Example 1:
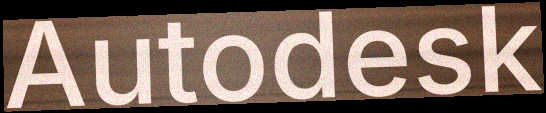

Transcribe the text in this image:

Autodesk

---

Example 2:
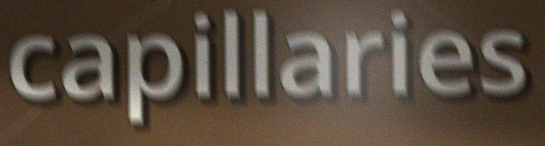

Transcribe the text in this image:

capillaries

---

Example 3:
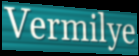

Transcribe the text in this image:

Vermilye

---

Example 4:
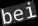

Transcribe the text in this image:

bei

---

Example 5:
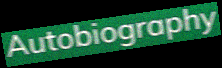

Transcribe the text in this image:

Autobiography